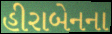
હીરાબેનના